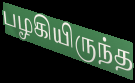
பழகியிருந்த